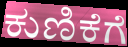
ಕುಣಿಕೆಗೆ